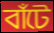
বাঁটে